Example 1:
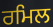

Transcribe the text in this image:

ਰਮਿਲ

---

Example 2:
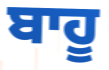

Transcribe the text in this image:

ਬਾਹੂ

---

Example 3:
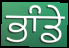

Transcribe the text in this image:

ਭਾੰਡੇ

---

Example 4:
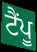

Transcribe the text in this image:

ਟੈਂਪੂ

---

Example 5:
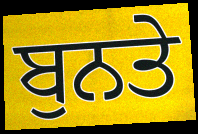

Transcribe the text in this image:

ਬੁਨਤੇ